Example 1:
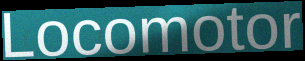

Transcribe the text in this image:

Locomotor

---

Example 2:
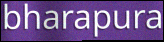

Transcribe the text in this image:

bharapura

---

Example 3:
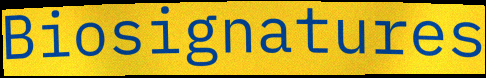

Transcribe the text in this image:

Biosignatures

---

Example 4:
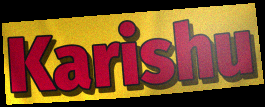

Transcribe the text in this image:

Karishu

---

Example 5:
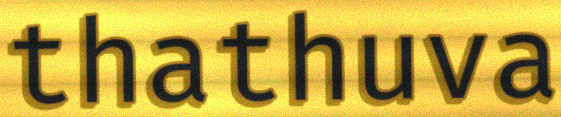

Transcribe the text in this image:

thathuva